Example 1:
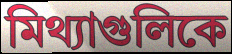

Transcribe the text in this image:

মিথ্যাগুলিকে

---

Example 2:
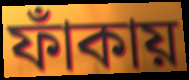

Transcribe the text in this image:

ফাঁকায়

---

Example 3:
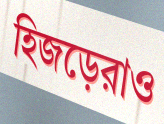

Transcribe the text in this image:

হিজড়েরাও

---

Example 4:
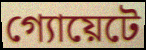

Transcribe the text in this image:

গ্যোয়েটে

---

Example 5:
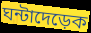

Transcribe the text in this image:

ঘন্টাদেড়েক